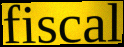
fiscal